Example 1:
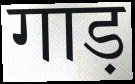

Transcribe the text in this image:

गाड़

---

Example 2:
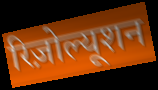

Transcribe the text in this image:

रिज़ोल्यूशन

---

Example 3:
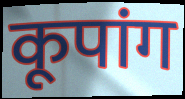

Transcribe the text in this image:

कूपांग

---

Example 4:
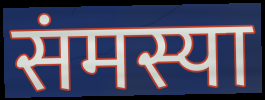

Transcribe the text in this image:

संमस्या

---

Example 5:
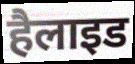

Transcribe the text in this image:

हैलाइड